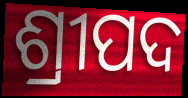
ଶ୍ରୀପଦ